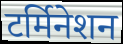
टर्मिनेशन